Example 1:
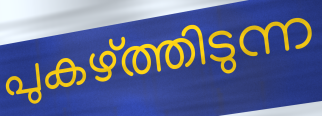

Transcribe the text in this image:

പുകഴ്ത്തിടുന്ന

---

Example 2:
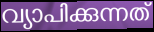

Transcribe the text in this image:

വ്യാപിക്കുന്നത്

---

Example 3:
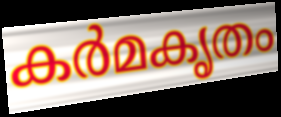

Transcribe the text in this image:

കർമകൃതം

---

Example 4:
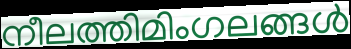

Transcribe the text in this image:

നീലത്തിമിംഗലങ്ങൾ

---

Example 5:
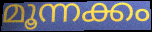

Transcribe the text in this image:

മൂന്നക്കം